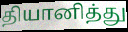
தியானித்து